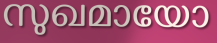
സുഖമായോ